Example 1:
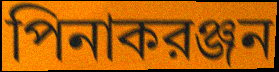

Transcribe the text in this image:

পিনাকরঞ্জন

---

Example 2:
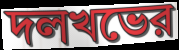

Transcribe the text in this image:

দলখভের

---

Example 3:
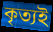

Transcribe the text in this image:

কৃত্যই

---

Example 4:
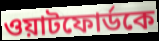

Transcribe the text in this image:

ওয়াটফোর্ডকে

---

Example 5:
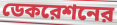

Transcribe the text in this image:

ডেকরেশনের